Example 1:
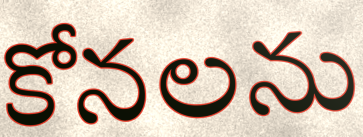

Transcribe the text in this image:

కోనలను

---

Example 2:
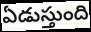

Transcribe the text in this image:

ఏడుస్తుంది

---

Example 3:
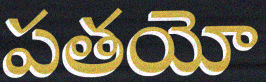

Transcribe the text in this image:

పతయో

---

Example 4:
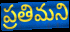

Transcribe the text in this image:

ప్రతిమని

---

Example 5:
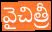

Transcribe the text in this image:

వైచిత్రీ